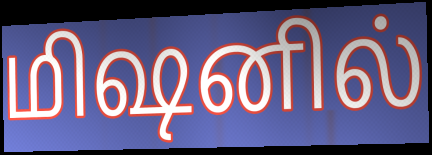
மிஷனில்